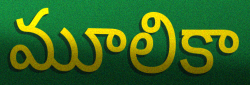
మూలికా